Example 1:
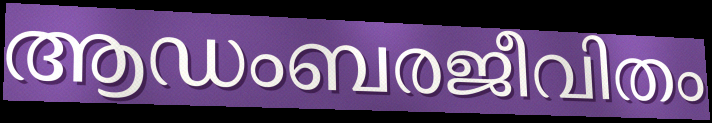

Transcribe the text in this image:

ആഡംബരജീവിതം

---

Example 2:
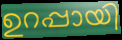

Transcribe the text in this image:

ഉറപ്പായി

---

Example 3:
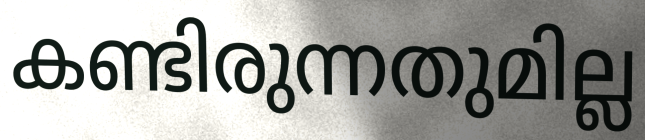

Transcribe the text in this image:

കണ്ടിരുന്നതുമില്ല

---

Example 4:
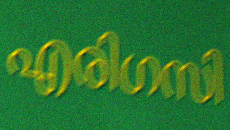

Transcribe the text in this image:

എരിഗസി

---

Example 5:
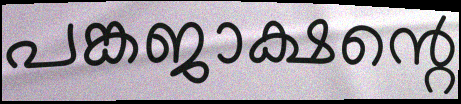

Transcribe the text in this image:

പങ്കജാക്ഷന്റെ